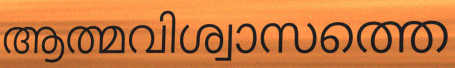
ആത്മവിശ്വാസത്തെ